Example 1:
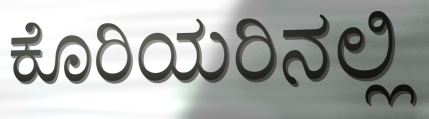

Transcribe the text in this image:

ಕೊರಿಯರಿನಲ್ಲಿ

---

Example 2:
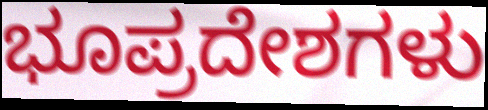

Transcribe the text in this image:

ಭೂಪ್ರದೇಶಗಳು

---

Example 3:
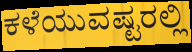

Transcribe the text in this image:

ಕಳೆಯುವಷ್ಟರಲ್ಲಿ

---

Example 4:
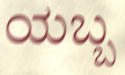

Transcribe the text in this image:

ಯಬ್ಬ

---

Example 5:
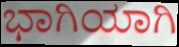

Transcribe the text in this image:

ಭಾಗಿಯಾಗಿ